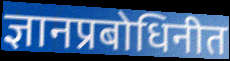
ज्ञानप्रबोधिनीत